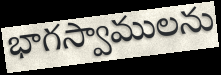
భాగస్వాములను